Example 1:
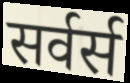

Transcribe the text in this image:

सर्वर्स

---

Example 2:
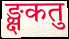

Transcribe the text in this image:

ङ्क्षकतु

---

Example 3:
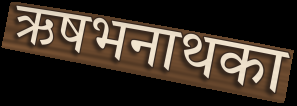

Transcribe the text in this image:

ऋषभनाथका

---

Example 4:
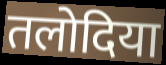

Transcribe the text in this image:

तलोदिया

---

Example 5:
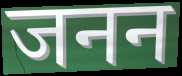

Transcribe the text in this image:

जनन